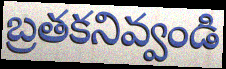
బ్రతకనివ్వండి